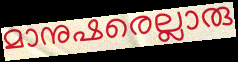
മാനുഷരെല്ലാരു